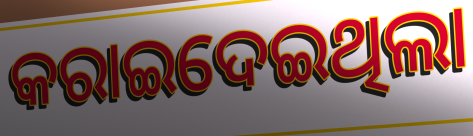
କରାଇଦେଇଥିଲା